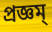
প্রজ্ঞম্